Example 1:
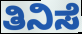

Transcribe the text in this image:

ತಿನಿಸೆ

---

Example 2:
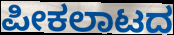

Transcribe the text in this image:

ಪೀಕಲಾಟದ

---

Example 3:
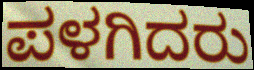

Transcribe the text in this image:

ಪಳಗಿದರು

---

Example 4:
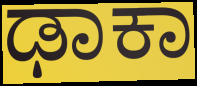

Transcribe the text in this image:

ಢಾಕಾ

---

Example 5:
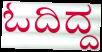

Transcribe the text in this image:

ಓದಿದ್ದ